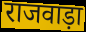
राजवाड़ा